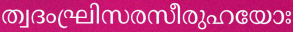
ത്വദംഘ്രിസരസീരുഹയോഃ